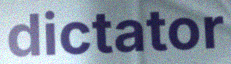
dictator